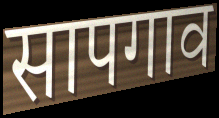
सापगाव